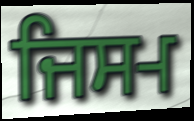
ਜਿਸ੍ਮ